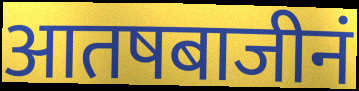
आतषबाजीनं